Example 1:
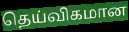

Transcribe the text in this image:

தெய்விகமான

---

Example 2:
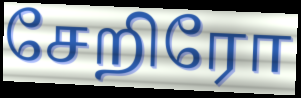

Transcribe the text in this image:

சேறிரோ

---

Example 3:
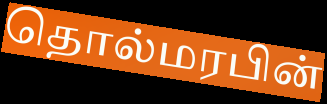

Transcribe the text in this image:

தொல்மரபின்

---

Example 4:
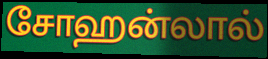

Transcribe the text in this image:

சோஹன்லால்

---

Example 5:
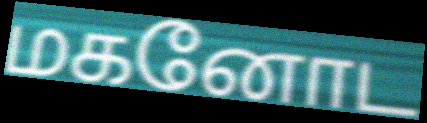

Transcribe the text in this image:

மகனோட